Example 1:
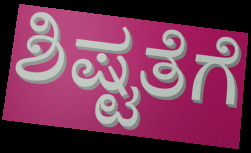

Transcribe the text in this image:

ಶಿಷ್ಟತೆಗೆ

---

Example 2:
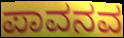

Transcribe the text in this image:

ಪಾವನವ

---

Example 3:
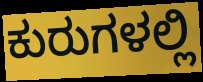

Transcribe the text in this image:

ಕುರುಗಳಲ್ಲಿ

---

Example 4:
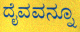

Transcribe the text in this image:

ದೈವವನ್ನೂ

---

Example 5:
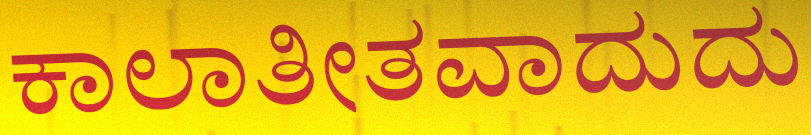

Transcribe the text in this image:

ಕಾಲಾತೀತವಾದುದು